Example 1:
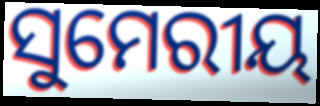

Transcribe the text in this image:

ସୁମେରୀୟ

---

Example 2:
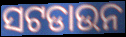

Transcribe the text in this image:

ସଟଡାଉନ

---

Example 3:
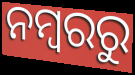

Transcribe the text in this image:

ନମ୍ବରରୁ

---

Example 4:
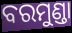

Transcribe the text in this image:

ବରମୁଣ୍ଡା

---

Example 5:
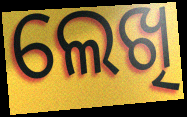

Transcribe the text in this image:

ଲେଖି